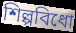
শিল্পবিধো